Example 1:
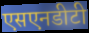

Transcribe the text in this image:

एसएनडीटी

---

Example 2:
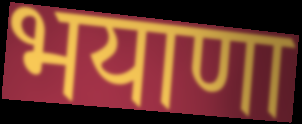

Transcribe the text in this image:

भयाणा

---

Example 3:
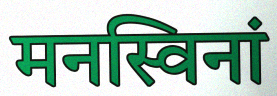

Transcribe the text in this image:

मनस्विनां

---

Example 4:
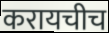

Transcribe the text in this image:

करायचीच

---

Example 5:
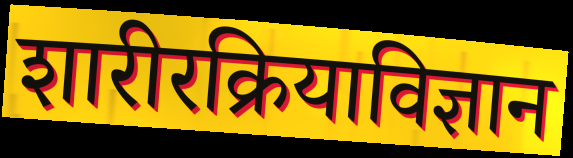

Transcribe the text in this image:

शारीरक्रियाविज्ञान